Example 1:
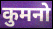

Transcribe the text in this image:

कुमनो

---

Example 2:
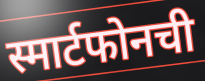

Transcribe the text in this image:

स्मार्टफोनची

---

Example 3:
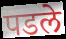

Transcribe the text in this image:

पडले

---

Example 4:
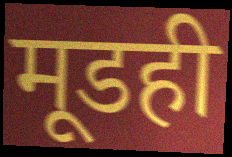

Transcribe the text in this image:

मूडही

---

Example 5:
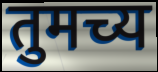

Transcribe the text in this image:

तुमच्य